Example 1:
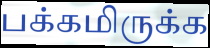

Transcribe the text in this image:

பக்கமிருக்க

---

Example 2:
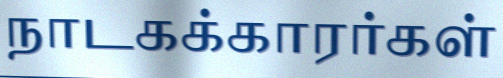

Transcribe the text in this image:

நாடகக்காரர்கள்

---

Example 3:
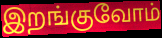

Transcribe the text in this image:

இறங்குவோம்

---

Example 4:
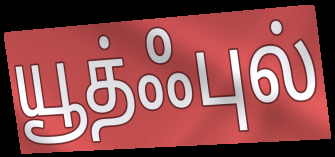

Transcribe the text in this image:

யூத்ஃபுல்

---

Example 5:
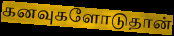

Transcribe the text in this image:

கனவுகளோடுதான்